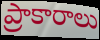
ప్రాకారాలు